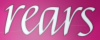
rears